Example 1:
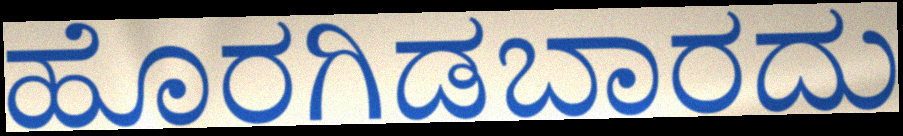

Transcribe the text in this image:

ಹೊರಗಿಡಬಾರದು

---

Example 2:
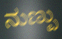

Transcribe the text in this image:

ನುಣ್ಪು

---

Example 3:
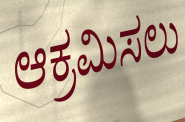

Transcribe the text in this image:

ಆಕ್ರಮಿಸಲು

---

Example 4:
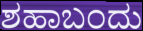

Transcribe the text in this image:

ಶಹಾಬಂದು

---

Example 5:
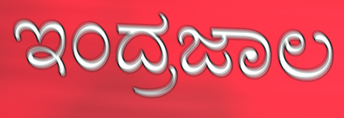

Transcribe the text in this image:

ಇಂದ್ರಜಾಲ